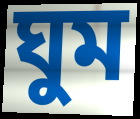
ঘুম